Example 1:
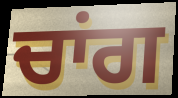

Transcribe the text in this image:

ਚਾਂਗ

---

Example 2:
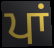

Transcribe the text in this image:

ਪਾਂ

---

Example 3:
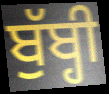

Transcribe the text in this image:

ਬੁੱਬ੍ਹੀ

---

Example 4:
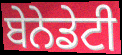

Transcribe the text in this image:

ਬੇਨੇਡੇਟੀ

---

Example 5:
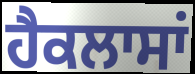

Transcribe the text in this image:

ਹੈਕਲਾਸਾਂ